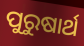
ପୁରୁଷାର୍ଥ